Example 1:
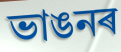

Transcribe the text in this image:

ভাঙনৰ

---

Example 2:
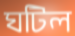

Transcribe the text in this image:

ঘটিল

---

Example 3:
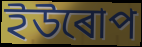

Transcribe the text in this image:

ইউৰোপ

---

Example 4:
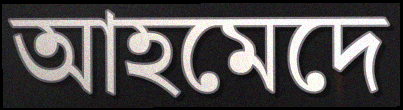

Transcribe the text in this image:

আহমেদে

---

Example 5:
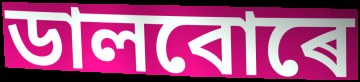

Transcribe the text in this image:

ডালবোৰে